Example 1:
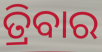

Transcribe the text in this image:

ତ୍ରିବାର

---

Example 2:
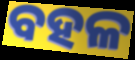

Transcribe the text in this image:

ବହଳ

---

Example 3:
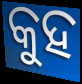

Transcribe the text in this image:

କୁହ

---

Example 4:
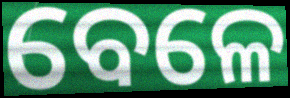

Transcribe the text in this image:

ବେଳେ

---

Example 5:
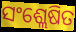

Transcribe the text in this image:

ସଂଶ୍ଲେଷିତ